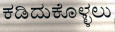
ಕಡಿದುಕೊಳ್ಳಲು